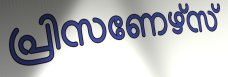
പ്രിസണേഴ്സ്